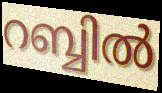
റബ്ബിൽ